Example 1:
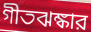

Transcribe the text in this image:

গীতঝঙ্কার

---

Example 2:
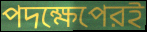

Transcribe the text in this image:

পদক্ষেপেরই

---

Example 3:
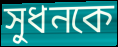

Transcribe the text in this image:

সুধনকে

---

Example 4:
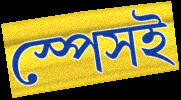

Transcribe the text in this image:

স্পেসই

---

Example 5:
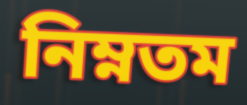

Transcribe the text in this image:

নিম্নতম